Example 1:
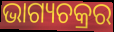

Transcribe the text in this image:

ଭାଗ୍ୟଚକ୍ରର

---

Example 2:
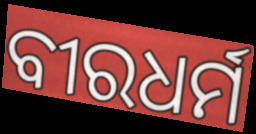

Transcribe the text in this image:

ବୀରଧର୍ମ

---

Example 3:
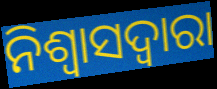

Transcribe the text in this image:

ନିଶ୍ୱାସଦ୍ୱାରା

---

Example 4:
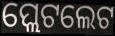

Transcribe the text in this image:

ପ୍ଲେଟଲେଟ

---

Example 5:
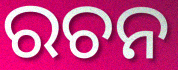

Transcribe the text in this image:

ରଚନ